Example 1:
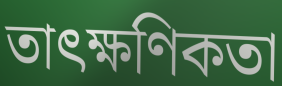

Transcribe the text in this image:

তাৎক্ষণিকতা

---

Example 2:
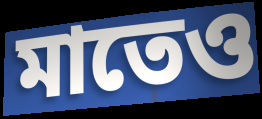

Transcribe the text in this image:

মাতেও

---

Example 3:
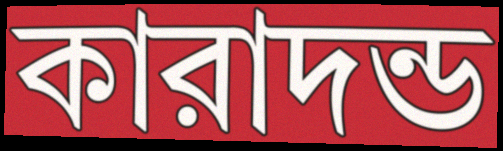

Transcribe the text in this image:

কারাদন্ড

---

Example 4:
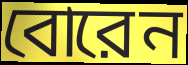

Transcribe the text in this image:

বোরেন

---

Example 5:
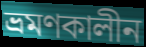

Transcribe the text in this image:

ভ্রমণকালীন